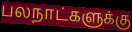
பலநாட்களுக்கு